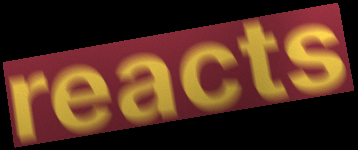
reacts